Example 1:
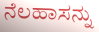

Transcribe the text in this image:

ನೆಲಹಾಸನ್ನು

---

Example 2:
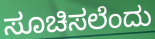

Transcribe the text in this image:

ಸೂಚಿಸಲೆಂದು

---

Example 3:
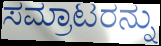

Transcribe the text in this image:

ಸಮ್ರಾಟರನ್ನು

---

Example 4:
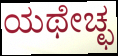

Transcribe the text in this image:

ಯಥೇಚ್ಛ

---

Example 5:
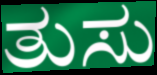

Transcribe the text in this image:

ತುಸು